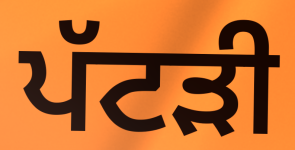
ਪੱਟੜੀ